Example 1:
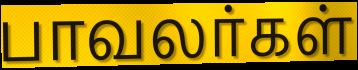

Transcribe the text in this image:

பாவலர்கள்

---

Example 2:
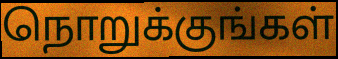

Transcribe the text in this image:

நொறுக்குங்கள்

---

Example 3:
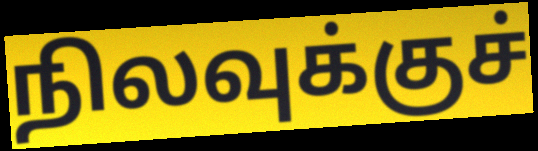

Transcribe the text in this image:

நிலவுக்குச்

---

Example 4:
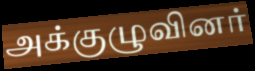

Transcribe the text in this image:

அக்குழுவினர்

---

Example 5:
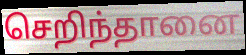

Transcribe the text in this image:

செறிந்தானை